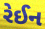
રેઈન